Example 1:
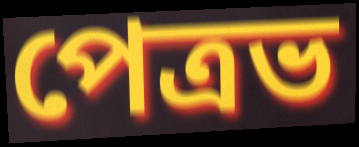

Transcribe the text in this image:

পেত্রভ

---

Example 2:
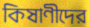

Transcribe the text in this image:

কিষাণীদের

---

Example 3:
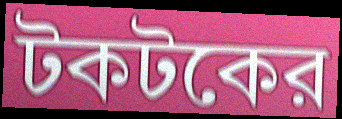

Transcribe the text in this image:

টকটকের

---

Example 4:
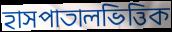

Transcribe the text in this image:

হাসপাতালভিত্তিক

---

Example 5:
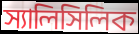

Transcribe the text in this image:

স্যালিসিলিক